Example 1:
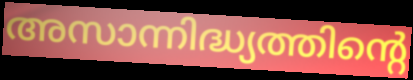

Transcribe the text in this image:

അസാന്നിദ്ധ്യത്തിന്റെ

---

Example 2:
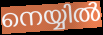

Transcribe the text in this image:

നെയ്യിൽ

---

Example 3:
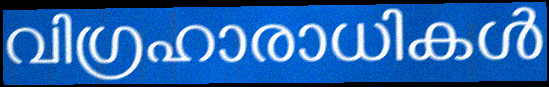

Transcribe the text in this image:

വിഗ്രഹാരാധികൾ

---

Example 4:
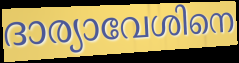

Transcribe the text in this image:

ദാര്യാവേശിനെ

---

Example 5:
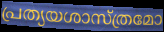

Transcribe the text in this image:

പ്രത്യയശാസ്ത്രമോ